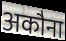
अकौना